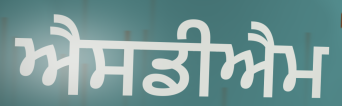
ਐਸਡੀਐਮ